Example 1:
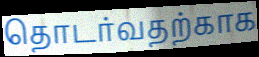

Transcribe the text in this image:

தொடர்வதற்காக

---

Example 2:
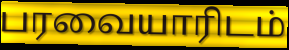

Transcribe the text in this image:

பரவையாரிடம்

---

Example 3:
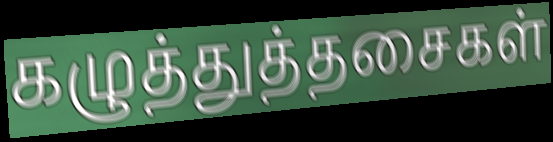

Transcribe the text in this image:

கழுத்துத்தசைகள்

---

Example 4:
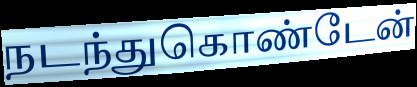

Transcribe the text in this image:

நடந்துகொண்டேன்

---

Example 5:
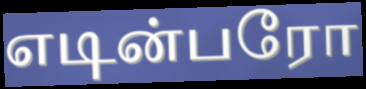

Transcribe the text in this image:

எடின்பரோ